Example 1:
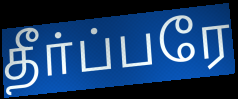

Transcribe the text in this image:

தீர்ப்பரே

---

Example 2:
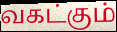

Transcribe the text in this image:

வகட்கும்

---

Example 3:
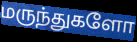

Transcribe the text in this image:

மருந்துகளோ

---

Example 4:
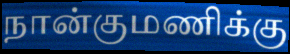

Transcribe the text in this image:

நான்குமணிக்கு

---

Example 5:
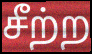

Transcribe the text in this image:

சீற்ற